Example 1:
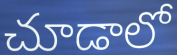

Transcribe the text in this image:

చూడాలో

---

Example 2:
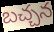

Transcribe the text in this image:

బచ్చన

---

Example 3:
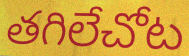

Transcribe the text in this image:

తగిలేచోట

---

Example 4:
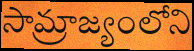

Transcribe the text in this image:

సామ్రాజ్యంలోని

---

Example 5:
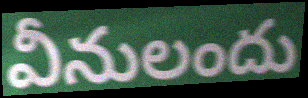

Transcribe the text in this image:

వీనులందు